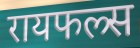
रायफल्स